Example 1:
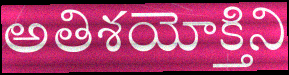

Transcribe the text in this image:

అతిశయోక్తిని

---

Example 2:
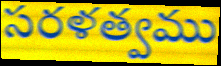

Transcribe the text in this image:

సరళత్వము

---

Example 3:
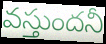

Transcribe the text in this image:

వస్తుందనీ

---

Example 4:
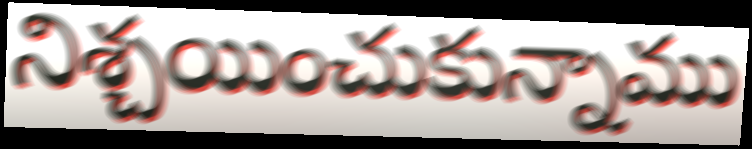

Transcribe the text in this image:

నిశ్చయించుకున్నాము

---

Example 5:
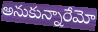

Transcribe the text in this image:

అనుకున్నారేమో